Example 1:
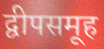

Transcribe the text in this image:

द्वीपसमूह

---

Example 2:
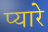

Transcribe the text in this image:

प्यारे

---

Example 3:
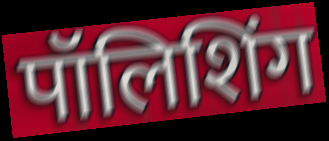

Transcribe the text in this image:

पॉलिशिंग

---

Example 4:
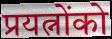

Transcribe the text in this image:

प्रयत्नोंको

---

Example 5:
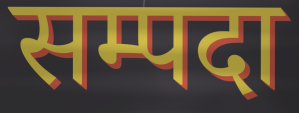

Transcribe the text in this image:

सम्पदा